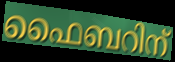
ഫൈബറിന്